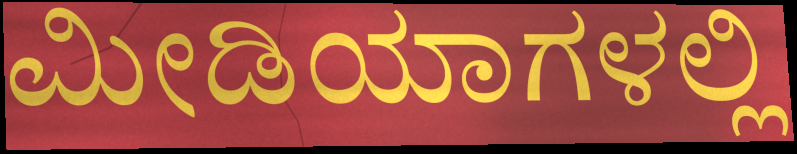
ಮೀಡಿಯಾಗಳಲ್ಲಿ